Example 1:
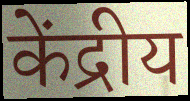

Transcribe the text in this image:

केंद्रीय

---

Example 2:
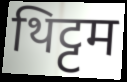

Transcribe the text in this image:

थिट्टम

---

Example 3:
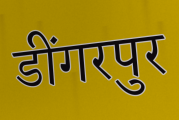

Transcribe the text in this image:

डींगरपुर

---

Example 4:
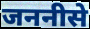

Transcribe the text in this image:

जननीसे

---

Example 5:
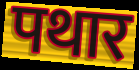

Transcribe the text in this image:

पथार